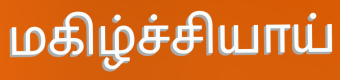
மகிழ்ச்சியாய்